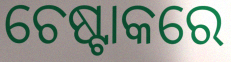
ଚେଷ୍ଟାକରେ